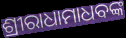
ଶ୍ରୀରାଧାମାଧବଙ୍କ